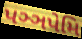
પઞ્ઞપેમિ